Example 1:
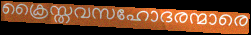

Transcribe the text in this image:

ക്രൈസ്തവസഹോദരന്മാരെ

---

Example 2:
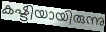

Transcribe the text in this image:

കഷ്ടിയായിരുന്നു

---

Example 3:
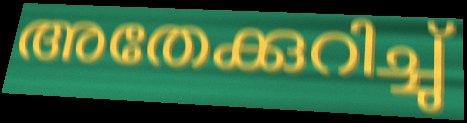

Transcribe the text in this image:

അതേക്കുറിച്ചു്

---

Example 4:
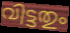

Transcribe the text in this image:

വിട്ടതും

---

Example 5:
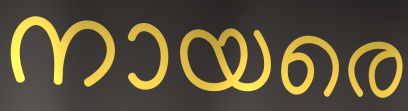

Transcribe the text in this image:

നായരെ